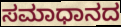
ಸಮಾಧಾನದ